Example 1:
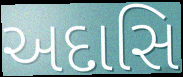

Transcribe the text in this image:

અદાસિ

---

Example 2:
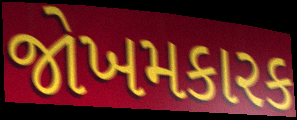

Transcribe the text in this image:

જોખમકારક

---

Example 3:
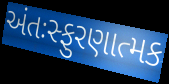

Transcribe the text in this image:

અંતઃસ્ફુરણાત્મક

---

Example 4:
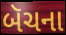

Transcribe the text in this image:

બૅચના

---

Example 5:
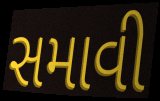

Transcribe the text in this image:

સમાવી